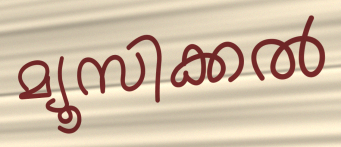
മ്യൂസിക്കൽ